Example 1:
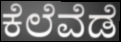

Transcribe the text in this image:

ಕೆಲೆವೆಡೆ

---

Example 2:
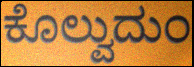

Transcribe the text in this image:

ಕೊಲ್ವುದುಂ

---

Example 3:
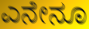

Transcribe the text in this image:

ಎನೇನೂ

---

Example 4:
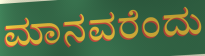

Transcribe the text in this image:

ಮಾನವರೆಂದು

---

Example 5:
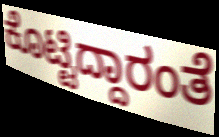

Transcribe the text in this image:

ಕೊಟ್ಟಿದ್ದಾರಂತೆ